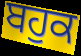
ਬਹੁਕ